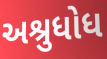
અશ્રુધોધ